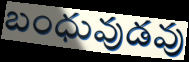
బంధువుడవు